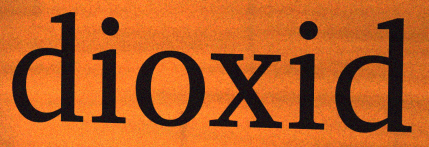
dioxid